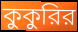
কুকুরির